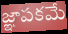
జ్ఞాపకమే